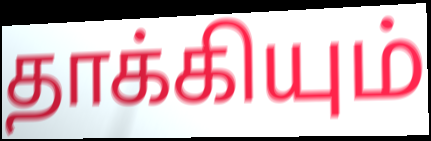
தாக்கியும்